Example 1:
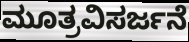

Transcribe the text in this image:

ಮೂತ್ರವಿಸರ್ಜನೆ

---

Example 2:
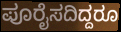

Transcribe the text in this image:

ಪೂರೈಸದಿದ್ದರೂ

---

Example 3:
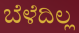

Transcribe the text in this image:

ಬೆಳೆದಿಲ್ಲ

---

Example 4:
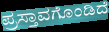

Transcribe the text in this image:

ಪ್ರಸ್ತಾವಗೊಂಡಿದೆ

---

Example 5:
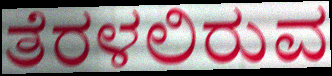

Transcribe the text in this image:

ತೆರಳಲಿರುವ